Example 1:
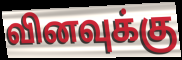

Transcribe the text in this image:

வினவுக்கு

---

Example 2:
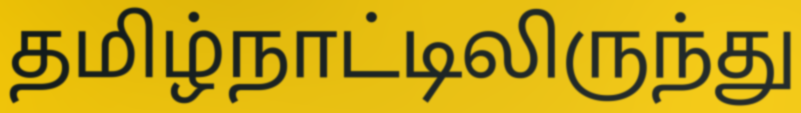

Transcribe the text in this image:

தமிழ்நாட்டிலிருந்து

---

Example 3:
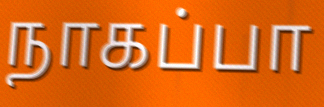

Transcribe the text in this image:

நாகப்பா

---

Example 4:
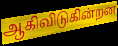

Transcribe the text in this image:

ஆகிவிடுகின்றன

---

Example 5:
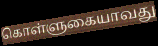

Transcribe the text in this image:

கொள்ளுகையாவது